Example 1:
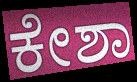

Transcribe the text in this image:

ಕೇಶಾ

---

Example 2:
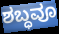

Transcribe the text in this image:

ಶಬ್ಧವೂ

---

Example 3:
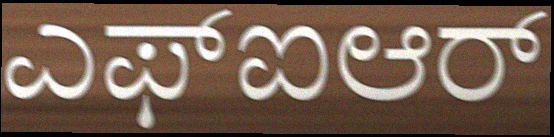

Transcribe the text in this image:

ಎಫ್ಐಆರ್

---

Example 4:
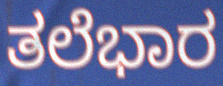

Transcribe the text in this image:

ತಲೆಭಾರ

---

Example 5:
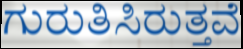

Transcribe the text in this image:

ಗುರುತಿಸಿರುತ್ತವೆ